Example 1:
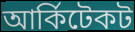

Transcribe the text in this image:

আর্কিটেকট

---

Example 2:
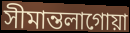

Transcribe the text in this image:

সীমান্তলাগোয়া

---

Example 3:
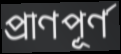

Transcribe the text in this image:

প্রাণপূর্ণ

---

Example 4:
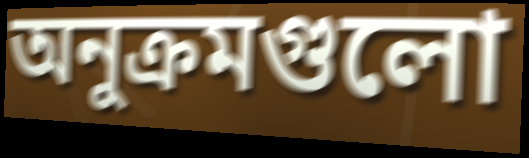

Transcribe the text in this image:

অনুক্রমগুলো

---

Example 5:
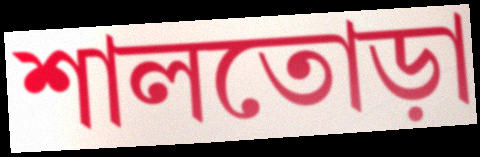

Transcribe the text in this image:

শালতোড়া